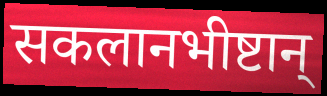
सकलानभीष्टान्